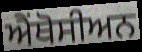
ਐਂਥੋਸੀਅਨ